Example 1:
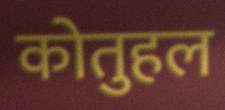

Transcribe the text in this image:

कोतुहल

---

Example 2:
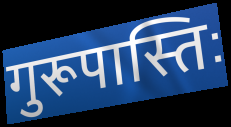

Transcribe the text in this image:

गुरूपास्तिः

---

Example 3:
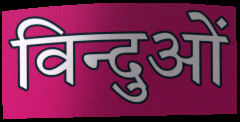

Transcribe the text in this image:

विन्दुओं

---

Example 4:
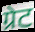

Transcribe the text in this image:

ग्रेट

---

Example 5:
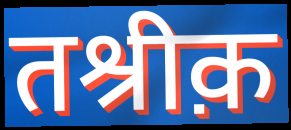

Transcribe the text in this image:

तश्रीक़